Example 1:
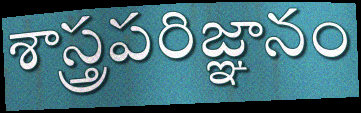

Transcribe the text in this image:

శాస్త్రపరిజ్ఞానం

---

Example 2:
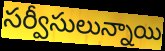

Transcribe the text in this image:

సర్వీసులున్నాయి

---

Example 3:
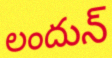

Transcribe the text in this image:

లందున్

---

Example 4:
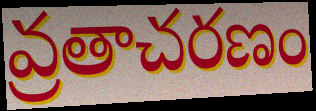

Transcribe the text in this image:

వ్రతాచరణం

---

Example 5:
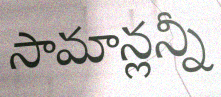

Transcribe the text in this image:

సామాన్లన్నీ